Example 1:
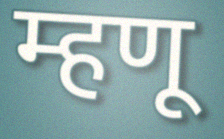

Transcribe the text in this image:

म्हणू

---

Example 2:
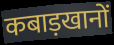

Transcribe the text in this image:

कबाड़खानों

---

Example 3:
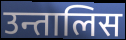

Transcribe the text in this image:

उन्तालिस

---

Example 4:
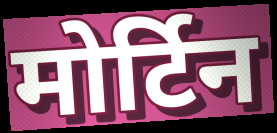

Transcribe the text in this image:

मोर्टिन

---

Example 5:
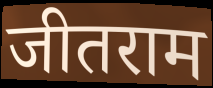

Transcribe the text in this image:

जीतराम